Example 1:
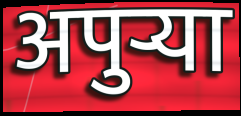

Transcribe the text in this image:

अपुर्‍या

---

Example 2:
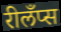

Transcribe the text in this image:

रीलँप्स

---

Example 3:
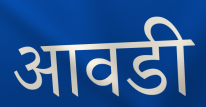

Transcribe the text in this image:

आवडी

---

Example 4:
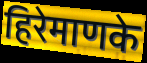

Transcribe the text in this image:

हिरेमाणके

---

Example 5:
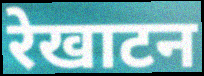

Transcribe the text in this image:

रेखाटन